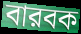
বারবক